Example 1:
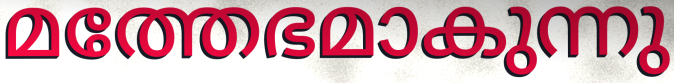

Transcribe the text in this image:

മത്തേഭമാകുന്നു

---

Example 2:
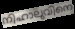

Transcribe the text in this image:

നിഹാലുവിനെ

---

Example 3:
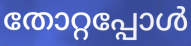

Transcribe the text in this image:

തോറ്റപ്പോൾ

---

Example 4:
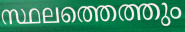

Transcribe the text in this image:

സ്ഥലത്തെത്തും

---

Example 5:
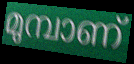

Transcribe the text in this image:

മുമ്പാണ്